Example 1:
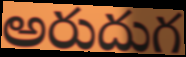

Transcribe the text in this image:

అరుదుగ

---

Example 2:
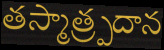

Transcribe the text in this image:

తస్మాత్ర్పదాన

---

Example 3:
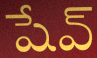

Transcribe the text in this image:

షేవ్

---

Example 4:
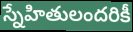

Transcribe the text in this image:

స్నేహితులందరికీ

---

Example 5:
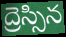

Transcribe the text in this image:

ద్రెస్సిన